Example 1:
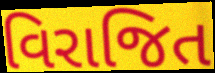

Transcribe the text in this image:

વિરાજિત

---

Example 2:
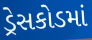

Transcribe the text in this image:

ડ્રેસકોડમાં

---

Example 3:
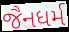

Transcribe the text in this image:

જૈનધર્મ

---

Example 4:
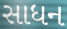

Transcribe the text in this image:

સાધન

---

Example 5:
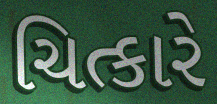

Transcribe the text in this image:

ચિત્કારે